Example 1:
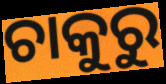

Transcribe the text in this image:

ଚାକୁରୁ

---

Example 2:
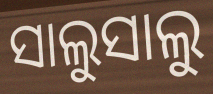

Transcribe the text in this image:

ସାଲୁସାଲୁ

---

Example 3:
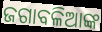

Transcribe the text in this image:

ଜଗାବଳିଆଙ୍କ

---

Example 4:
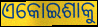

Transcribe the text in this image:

ଏକୋଇଶାକୁ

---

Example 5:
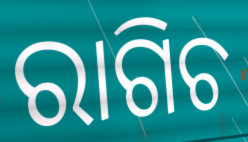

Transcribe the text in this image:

ରାଗିଚ